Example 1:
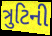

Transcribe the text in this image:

ત્રુટિની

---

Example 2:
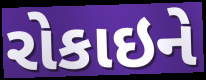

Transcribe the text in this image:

રોકાઇને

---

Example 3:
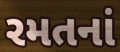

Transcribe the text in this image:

રમતનાં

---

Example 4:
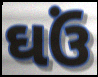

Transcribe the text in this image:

ઘઉં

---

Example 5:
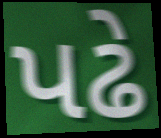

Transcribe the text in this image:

પઢે